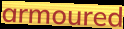
armoured